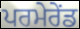
ਪਰਮੇਰੇਂਡ